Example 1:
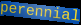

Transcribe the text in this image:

perennial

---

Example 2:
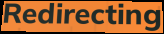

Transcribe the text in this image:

Redirecting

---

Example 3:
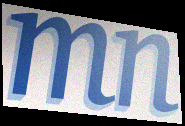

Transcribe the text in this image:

mn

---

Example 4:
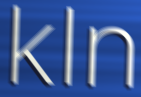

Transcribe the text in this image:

kln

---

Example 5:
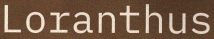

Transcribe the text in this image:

Loranthus